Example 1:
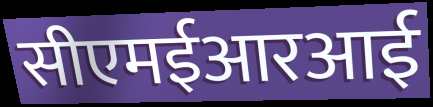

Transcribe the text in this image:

सीएमईआरआई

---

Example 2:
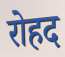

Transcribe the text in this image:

रोहद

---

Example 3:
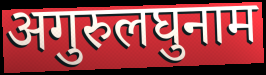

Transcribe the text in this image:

अगुरुलघुनाम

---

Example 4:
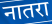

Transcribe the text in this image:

नातरा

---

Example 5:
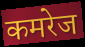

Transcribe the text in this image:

कमरेज